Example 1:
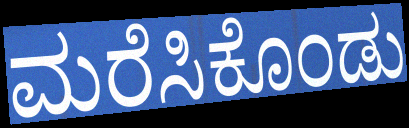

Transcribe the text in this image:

ಮರೆಸಿಕೊಂಡು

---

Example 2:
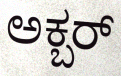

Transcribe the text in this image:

ಅಕ್ಬರ್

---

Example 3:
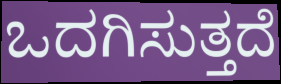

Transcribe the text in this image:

ಒದಗಿಸುತ್ತದೆ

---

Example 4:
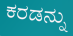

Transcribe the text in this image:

ಕರಡನ್ನು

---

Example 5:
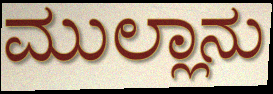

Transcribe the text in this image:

ಮುಲ್ಲಾನು